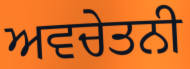
ਅਵਚੇਤਨੀ